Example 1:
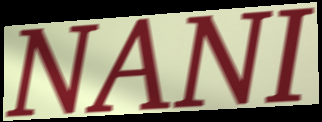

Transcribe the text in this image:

NANI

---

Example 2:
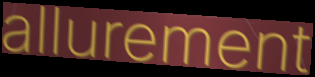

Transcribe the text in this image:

allurement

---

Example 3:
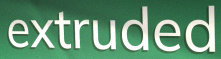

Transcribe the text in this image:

extruded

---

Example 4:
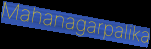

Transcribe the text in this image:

Mahanagarpalika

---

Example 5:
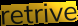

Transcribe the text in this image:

retrive